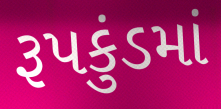
રૂપકુંડમાં